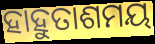
ହାହୁତାଶମୟ